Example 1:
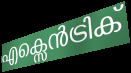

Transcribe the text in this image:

എക്സെൻട്രിക്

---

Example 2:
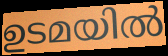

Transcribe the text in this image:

ഉടമയിൽ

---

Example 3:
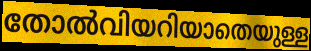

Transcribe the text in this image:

തോൽവിയറിയാതെയുള്ള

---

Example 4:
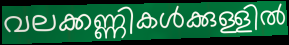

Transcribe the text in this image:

വലക്കണ്ണികൾക്കുള്ളിൽ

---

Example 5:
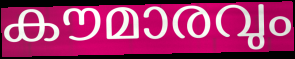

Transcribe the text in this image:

കൗമാരവും